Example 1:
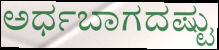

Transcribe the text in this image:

ಅರ್ಧಬಾಗದಷ್ಟು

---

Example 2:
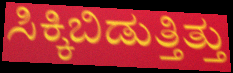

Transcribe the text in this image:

ಸಿಕ್ಕಿಬಿಡುತ್ತಿತ್ತು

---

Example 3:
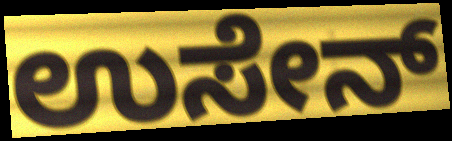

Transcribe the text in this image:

ಉಸೇನ್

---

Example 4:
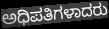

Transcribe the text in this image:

ಅಧಿಪತಿಗಳಾದರು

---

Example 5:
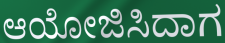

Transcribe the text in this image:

ಆಯೋಜಿಸಿದಾಗ